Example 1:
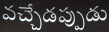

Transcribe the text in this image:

వచ్చేడప్పుడు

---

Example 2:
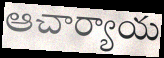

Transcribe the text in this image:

ఆచార్యాయ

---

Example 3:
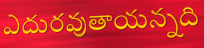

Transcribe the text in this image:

ఎదురవుతాయన్నది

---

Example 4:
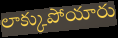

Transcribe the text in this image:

లాక్కుపోయారు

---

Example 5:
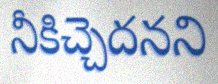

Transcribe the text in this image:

నీకిచ్చెదనని